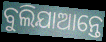
ବୁଲିଯାଆନ୍ତେ